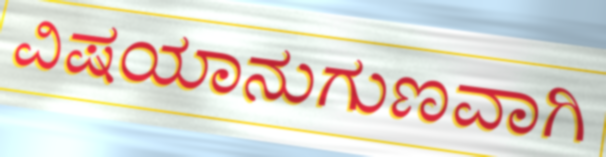
ವಿಷಯಾನುಗುಣವಾಗಿ